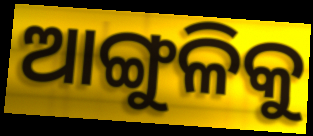
ଆଙ୍ଗୁଳିକୁ